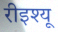
रीइश्यू